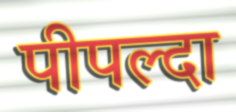
पीपल्दा